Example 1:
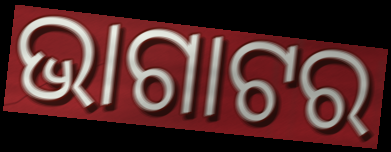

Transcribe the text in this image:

ଭାଗାଟର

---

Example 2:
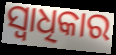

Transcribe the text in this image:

ସ୍ବାଧିକାର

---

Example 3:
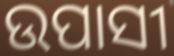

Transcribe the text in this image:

ଉପାସୀ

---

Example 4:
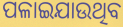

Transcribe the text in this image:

ପଳାଇଯାଉଥିବ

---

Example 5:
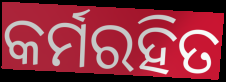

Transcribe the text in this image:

କର୍ମରହିତ